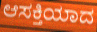
ಆಸಕ್ತಿಯಾದ